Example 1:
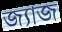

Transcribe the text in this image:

জ্যাজ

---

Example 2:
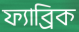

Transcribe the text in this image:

ফ্যাব্রিক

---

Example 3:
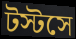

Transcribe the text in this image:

টস্টসে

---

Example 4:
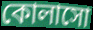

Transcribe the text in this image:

কোলাসো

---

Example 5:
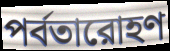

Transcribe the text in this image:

পর্বতারোহণ